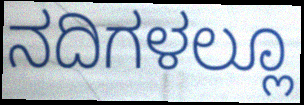
ನದಿಗಳಲ್ಲೂ